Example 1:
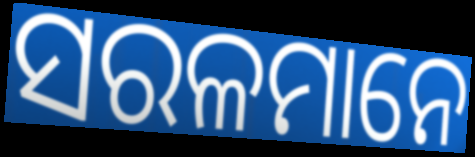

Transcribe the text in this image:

ସରଳମାନେ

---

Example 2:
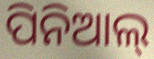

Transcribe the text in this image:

ପିନିଆଲ୍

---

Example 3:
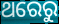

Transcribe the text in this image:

ଥରେରୁ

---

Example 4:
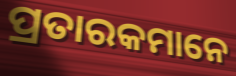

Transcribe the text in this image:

ପ୍ରତାରକମାନେ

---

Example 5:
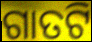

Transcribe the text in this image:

ଗାତଟି